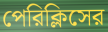
পেরিক্লিসের